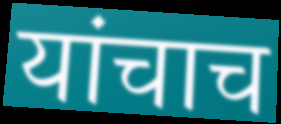
यांचाच